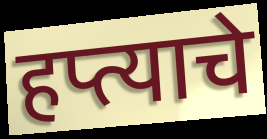
हप्त्याचे